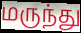
மருந்து